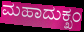
ಮಹಾದುಕ್ಖಂ